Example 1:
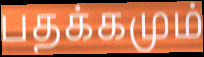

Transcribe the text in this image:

பதக்கமும்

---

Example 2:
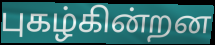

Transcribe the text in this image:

புகழ்கின்றன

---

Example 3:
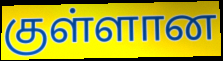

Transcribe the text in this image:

குள்ளான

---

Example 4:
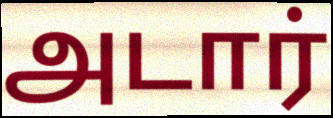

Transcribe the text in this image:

அடார்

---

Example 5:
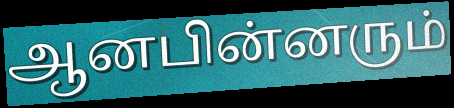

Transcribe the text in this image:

ஆனபின்னரும்